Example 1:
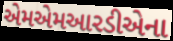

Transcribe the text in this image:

એમએમઆરડીએના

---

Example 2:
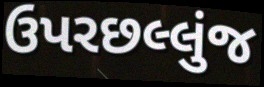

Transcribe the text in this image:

ઉપરછલ્લુંજ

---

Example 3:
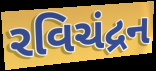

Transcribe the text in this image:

રવિચંદ્રન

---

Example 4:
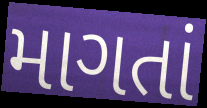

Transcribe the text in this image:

માગતાં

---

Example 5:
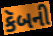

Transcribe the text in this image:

કૅબની